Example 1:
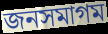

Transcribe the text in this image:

জনসমাগম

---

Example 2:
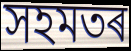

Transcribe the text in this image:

সহমতৰ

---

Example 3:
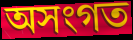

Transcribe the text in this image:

অসংগত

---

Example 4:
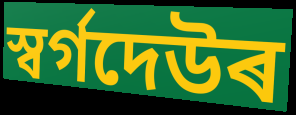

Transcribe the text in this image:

স্বৰ্গদেউৰ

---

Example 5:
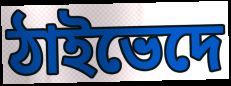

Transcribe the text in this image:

ঠাইভেদে